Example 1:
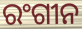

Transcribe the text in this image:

ରଂଗୀନ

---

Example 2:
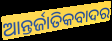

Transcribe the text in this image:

ଆନ୍ତର୍ଜାତିକବାଦର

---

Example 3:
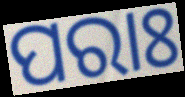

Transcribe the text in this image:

ପରାଃ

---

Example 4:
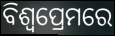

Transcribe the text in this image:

ବିଶ୍ୱପ୍ରେମରେ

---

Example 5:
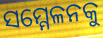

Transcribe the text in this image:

ସମ୍ମେଳନକୁ